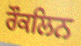
ਰੌਕਲਿਨ